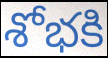
శోభకి